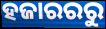
ହଜାରରରୁ